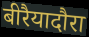
बीरैयादौरा